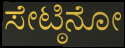
ಸೇಟ್ಠಿನೋ